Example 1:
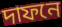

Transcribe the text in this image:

দাফনে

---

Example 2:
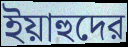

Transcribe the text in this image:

ইয়াহুদের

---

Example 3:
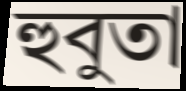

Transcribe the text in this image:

হুবুতা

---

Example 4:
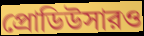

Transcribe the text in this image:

প্রোডিউসারও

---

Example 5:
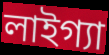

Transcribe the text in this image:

লাইগ্যা